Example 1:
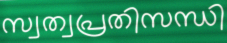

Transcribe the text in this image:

സ്വത്വപ്രതിസന്ധി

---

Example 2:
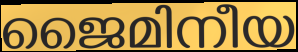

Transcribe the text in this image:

ജൈമിനീയ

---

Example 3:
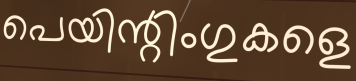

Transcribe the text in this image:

പെയിന്റിംഗുകളെ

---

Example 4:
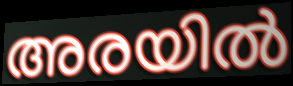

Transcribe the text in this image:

അരയിൽ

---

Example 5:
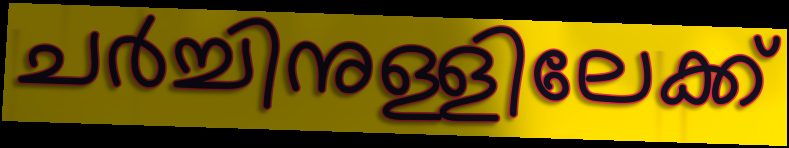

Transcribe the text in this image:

ചർച്ചിനുള്ളിലേക്ക്